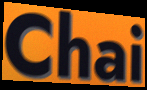
Chai